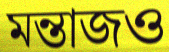
মন্তাজও